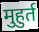
मुहुर्त